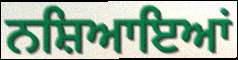
ਨਸ਼ਿਆਇਆਂ